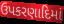
ઉપકરણાદિમાં